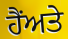
ਹੈਂਅਤੇ